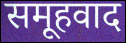
समूहवाद